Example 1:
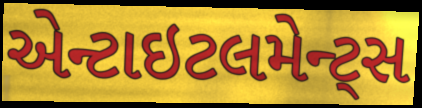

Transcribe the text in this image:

એન્ટાઇટલમેન્ટ્સ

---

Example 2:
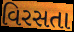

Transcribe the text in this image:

વિરસતા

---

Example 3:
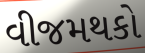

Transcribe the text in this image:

વીજમથકો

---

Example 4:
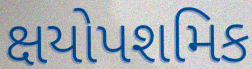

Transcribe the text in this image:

ક્ષયોપશમિક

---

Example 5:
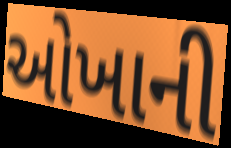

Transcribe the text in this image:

ઓખાની